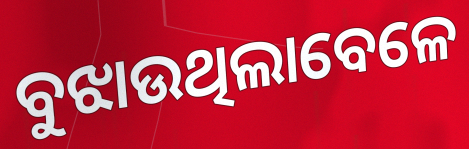
ବୁଝାଉଥିଲାବେଳେ